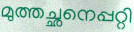
മുത്തച്ഛനെപ്പറ്റി